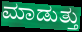
ಮಾಡುತ್ತು